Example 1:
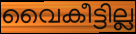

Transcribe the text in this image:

വൈകീട്ടില്ല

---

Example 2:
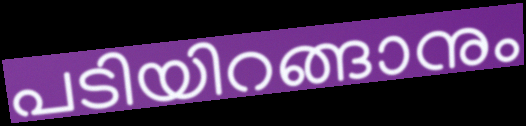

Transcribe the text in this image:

പടിയിറങ്ങാനും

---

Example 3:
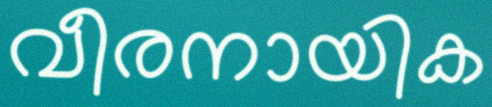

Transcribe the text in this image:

വീരനായിക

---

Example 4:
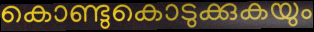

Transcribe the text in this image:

കൊണ്ടുകൊടുക്കുകയും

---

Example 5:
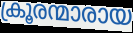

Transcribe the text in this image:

ക്രൂരന്മാരായ